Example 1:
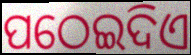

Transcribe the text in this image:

ପଠେଇଦିଏ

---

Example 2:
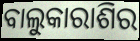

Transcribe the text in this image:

ବାଲୁକାରାଶିର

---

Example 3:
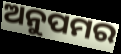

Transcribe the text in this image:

ଅନୁପମର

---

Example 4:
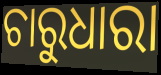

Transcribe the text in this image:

ଚାରୁଧାରା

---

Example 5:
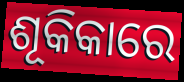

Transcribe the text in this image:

ଶୂକିକାରେ